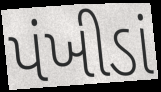
પંખીડાં